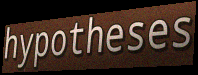
hypotheses